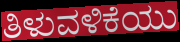
ತಿಳುವಳಿಕೆಯು